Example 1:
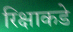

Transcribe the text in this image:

रिक्षाकडे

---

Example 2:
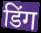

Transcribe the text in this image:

डिंग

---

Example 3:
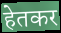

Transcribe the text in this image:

हेतकर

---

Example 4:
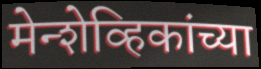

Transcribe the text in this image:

मेन्शेव्हिकांच्या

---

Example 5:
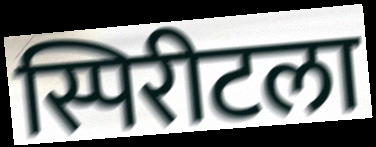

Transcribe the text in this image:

स्पिरीटला